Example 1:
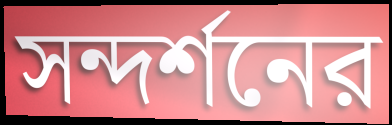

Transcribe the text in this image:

সন্দর্শনের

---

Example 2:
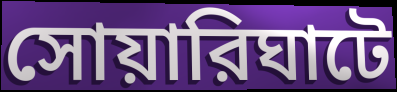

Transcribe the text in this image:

সোয়ারিঘাটে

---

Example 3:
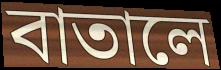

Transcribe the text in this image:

বাতালে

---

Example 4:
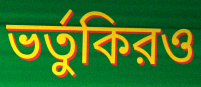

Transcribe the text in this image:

ভর্তুকিরও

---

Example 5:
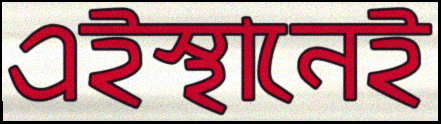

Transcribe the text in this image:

এইস্থানেই